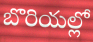
బొరియల్లో